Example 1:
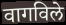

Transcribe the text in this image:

वागविले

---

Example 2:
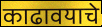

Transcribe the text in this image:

काढावयाचे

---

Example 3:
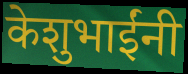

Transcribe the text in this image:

केशुभाईंनी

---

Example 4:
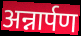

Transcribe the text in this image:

अन्नार्पण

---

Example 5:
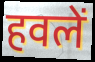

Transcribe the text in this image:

हवलें